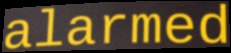
alarmed